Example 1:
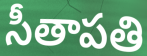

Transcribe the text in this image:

సీతాపతి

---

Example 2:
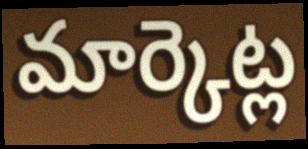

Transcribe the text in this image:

మార్కెట్ల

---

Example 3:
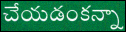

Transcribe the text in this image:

చేయడంకన్నా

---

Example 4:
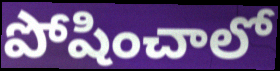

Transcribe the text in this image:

పోషించాలో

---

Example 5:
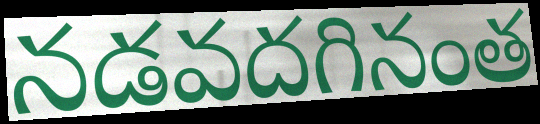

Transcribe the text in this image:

నడవదగినంత